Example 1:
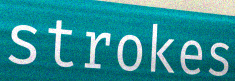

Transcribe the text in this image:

strokes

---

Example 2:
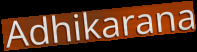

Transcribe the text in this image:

Adhikarana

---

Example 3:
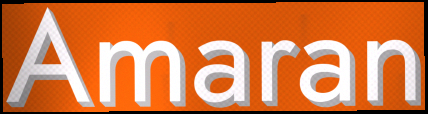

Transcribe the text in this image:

Amaran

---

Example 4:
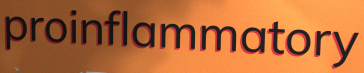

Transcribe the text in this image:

proinflammatory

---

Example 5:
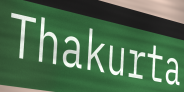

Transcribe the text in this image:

Thakurta